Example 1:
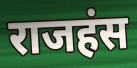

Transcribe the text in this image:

राजहंस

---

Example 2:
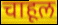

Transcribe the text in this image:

चाहूल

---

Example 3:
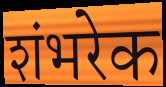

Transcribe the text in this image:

शंभरेक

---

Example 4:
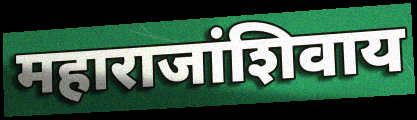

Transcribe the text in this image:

महाराजांशिवाय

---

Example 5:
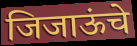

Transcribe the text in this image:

जिजाऊंचे